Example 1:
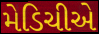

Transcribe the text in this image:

મેડિચીએ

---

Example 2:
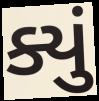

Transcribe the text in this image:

ક્યું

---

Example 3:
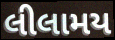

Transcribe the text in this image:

લીલામય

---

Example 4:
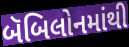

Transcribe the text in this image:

બૅબિલોનમાંથી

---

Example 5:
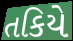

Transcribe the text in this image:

તકિયે